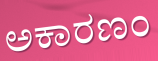
ಅಕಾರಣಂ